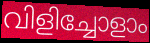
വിളിച്ചോളാം